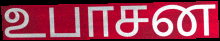
உபாசன